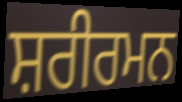
ਸ਼ਰੀਰਮਨ